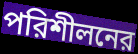
পরিশীলনের